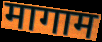
मागाम